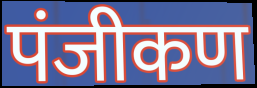
पंजीकण